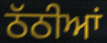
ਠੱਠੀਆਂ